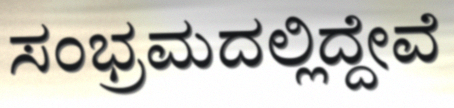
ಸಂಭ್ರಮದಲ್ಲಿದ್ದೇವೆ